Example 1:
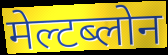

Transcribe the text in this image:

मेल्टब्लोन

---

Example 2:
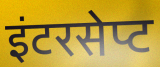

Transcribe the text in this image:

इंटरसेप्ट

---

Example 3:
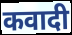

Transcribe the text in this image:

कवादी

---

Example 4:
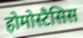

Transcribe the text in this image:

होमोस्टैसिस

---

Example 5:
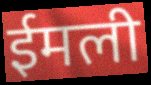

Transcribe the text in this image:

ईमली